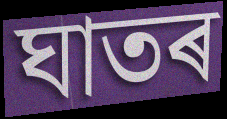
ঘাতৰ